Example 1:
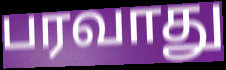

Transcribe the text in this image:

பரவாது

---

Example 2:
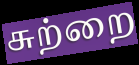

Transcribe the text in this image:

சுற்றை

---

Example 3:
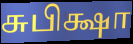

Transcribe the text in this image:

சுபிக்ஷா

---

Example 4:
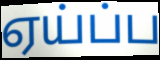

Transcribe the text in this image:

ஏய்ப்ப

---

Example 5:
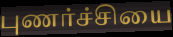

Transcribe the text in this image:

புணர்ச்சியை